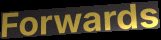
Forwards